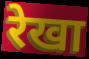
रेखा